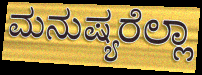
ಮನುಷ್ಯರೆಲ್ಲಾ